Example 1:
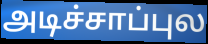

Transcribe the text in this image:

அடிச்சாப்புல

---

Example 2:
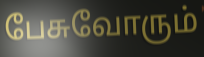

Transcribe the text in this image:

பேசுவோரும்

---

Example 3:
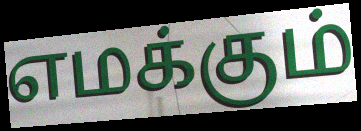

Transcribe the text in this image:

எமக்கும்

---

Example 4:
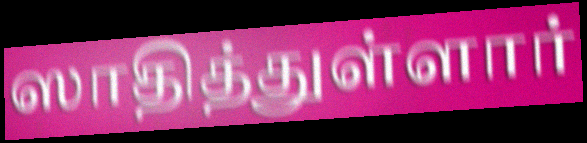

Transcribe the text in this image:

ஸாதித்துள்ளார்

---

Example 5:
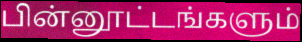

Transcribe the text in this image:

பின்னூட்டங்களும்